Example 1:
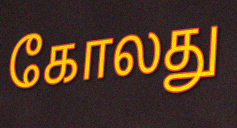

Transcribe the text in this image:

கோலது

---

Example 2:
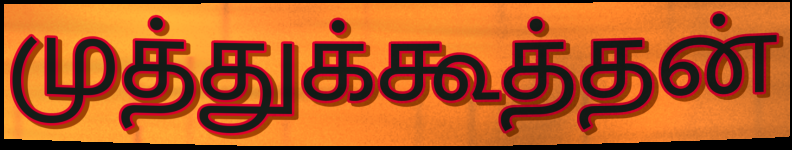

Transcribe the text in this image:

முத்துக்கூத்தன்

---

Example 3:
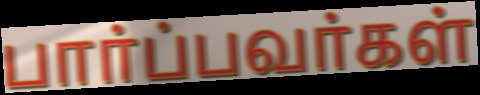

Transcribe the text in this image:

பார்ப்பவர்கள்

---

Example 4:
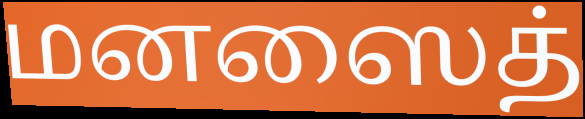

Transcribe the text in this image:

மனஸைத்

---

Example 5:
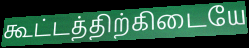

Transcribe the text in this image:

கூட்டத்திற்கிடையே